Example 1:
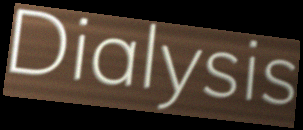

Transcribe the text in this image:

Dialysis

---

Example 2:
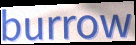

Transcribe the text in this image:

burrow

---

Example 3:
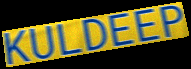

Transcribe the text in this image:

KULDEEP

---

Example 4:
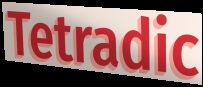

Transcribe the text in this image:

Tetradic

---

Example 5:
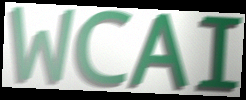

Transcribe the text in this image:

WCAI